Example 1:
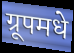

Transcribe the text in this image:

ग्रूपमधे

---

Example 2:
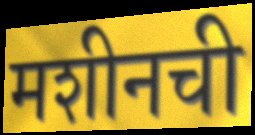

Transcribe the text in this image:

मशीनची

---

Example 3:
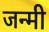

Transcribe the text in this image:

जन्मी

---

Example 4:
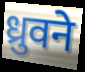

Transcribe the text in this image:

ध्रुवने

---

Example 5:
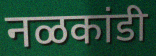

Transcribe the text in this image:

नळकांडी